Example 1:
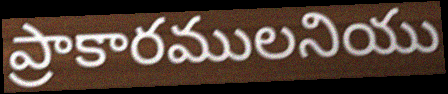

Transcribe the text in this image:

ప్రాకారములనియు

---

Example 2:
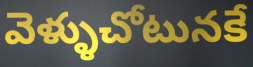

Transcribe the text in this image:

వెళ్ళుచోటునకే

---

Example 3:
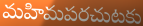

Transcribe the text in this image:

మహిమపరచుటకు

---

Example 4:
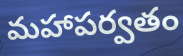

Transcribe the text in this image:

మహాపర్వతం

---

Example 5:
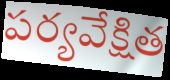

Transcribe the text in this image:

పర్యవేక్షిత